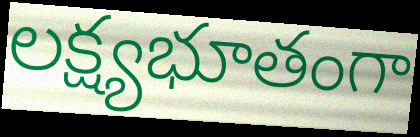
లక్ష్యభూతంగా